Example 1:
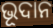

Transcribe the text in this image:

ଭୂଦାନ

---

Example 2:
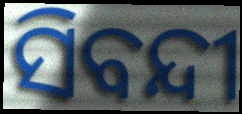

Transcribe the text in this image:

ସିବନ୍ଦୀ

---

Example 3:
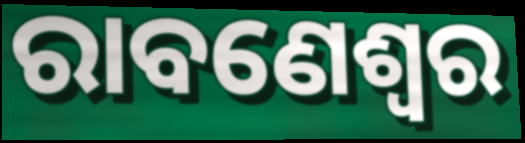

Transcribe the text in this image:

ରାବଣେଶ୍ୱର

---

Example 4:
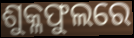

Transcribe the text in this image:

ଶୁକ୍ଳଫୁଲରେ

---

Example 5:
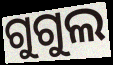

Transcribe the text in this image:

ଗୁଗୁଲ